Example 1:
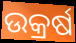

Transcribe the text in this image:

ଉକ୍ରର୍ଷ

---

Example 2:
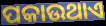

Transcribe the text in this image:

ପକାଉଥାଏ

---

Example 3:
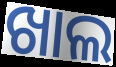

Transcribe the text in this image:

ଖାଲ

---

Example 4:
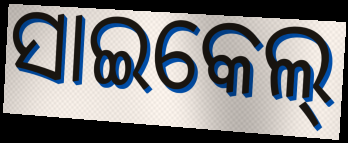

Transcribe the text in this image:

ସାଇକେଲ୍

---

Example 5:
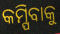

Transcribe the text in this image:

କମ୍ପିବାକୁ